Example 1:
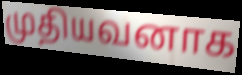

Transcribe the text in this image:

முதியவனாக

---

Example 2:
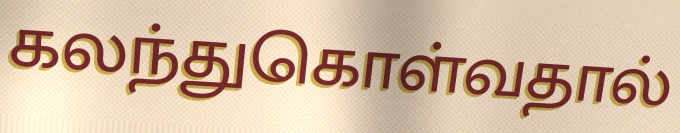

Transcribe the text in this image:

கலந்துகொள்வதால்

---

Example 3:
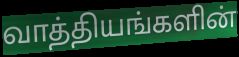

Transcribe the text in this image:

வாத்தியங்களின்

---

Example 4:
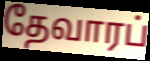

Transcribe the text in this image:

தேவாரப்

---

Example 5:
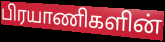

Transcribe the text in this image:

பிரயாணிகளின்